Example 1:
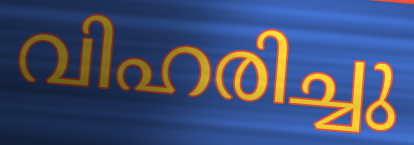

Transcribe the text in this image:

വിഹരിച്ചു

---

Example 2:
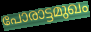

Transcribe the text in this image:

പോരാട്ടമുഖം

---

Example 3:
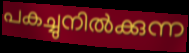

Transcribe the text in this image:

പകച്ചുനിൽക്കുന്ന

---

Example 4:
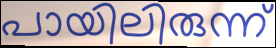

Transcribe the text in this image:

പായിലിരുന്ന്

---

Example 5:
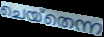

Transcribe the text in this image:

ചെയ്‌തെന്ന